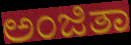
ಅಂಜಿತಾ